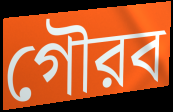
গৌরব